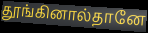
தூங்கினால்தானே